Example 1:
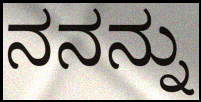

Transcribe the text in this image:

ನನನ್ನು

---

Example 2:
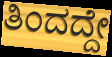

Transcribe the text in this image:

ತಿಂದದ್ದೇ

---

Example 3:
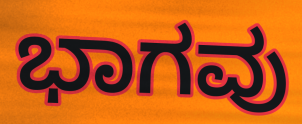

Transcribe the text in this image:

ಭಾಗವು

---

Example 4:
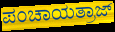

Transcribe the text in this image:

ಪಂಚಾಯತ್ರಾಜ್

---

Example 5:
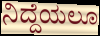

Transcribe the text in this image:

ನಿದ್ದೆಯಲೂ